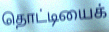
தொட்டியைக்